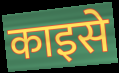
काइसे